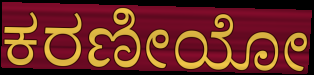
ಕರಣೀಯೋ